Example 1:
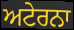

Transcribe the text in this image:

ਅਟੇਰਨਾ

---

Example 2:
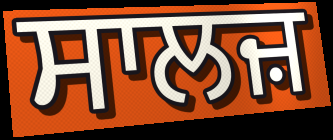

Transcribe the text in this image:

ਸਾਲਜ਼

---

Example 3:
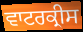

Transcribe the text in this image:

ਵਾਟਰਕ੍ਰੀਸ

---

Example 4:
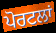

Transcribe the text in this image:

ਪੋਰਟਲਾਂ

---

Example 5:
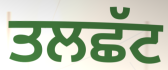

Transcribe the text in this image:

ਤਲਛੱਟ